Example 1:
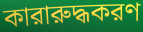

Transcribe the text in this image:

কারারুদ্ধকরণ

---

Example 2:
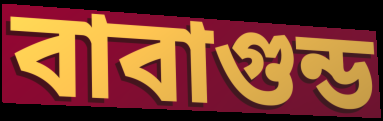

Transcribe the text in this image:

বাবাগুন্ড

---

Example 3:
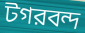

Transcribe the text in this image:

টগরবন্দ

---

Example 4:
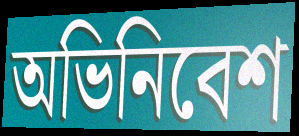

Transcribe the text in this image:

অভিনিবেশ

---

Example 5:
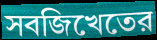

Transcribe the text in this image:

সবজিখেতের